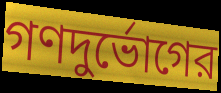
গণদুর্ভোগের